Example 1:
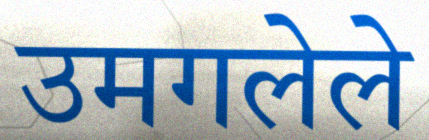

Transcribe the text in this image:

उमगलेले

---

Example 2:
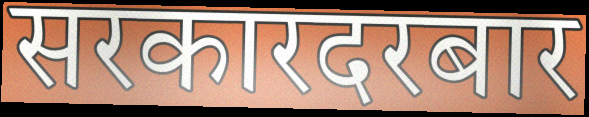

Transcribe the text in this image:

सरकारदरबार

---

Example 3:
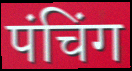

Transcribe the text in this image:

पंचिंग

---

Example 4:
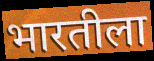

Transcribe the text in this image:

भारतीला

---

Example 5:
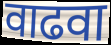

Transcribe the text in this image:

वाढवा